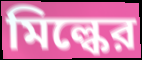
মিল্কের